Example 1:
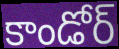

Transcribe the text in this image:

కాండోర్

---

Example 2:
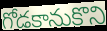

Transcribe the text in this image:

గోడకానుకొని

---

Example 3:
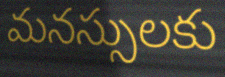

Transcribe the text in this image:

మనస్సులకు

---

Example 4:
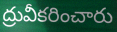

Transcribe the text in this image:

ద్రువీకరించారు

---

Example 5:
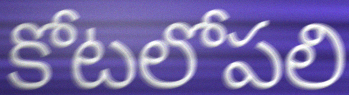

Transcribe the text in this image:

కోటలోపలి